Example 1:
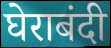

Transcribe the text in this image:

घेराबंदी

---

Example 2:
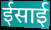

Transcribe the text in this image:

ईसाई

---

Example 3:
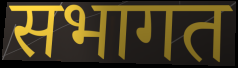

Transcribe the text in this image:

सभागत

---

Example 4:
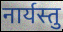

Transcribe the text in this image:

नार्यस्तु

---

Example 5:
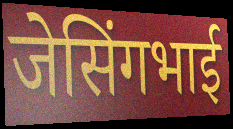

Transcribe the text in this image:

जेसिंगभाई